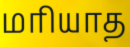
மரியாத